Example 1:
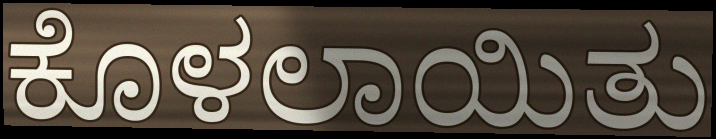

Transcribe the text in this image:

ಕೊಳಲಾಯಿತು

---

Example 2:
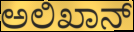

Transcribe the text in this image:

ಅಲಿಖಾನ್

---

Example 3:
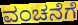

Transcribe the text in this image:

ವಂಚನೆಗೆ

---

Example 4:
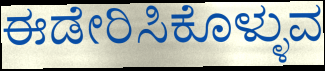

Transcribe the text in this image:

ಈಡೇರಿಸಿಕೊಳ್ಳುವ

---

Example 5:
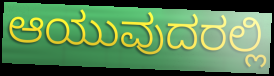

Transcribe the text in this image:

ಆಯುವುದರಲ್ಲಿ